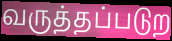
வருத்தப்படுற